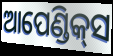
ଆପେଣ୍ଡିକ୍‌ସ